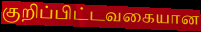
குறிப்பிட்டவகையான